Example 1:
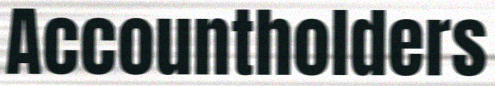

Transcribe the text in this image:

Accountholders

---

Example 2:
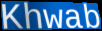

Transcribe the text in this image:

Khwab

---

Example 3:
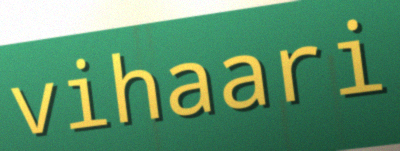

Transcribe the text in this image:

vihaari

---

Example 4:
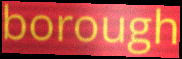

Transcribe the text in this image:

borough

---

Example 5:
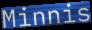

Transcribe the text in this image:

Minnis